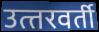
उत्‍तरवर्ती